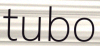
tubo